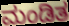
ಮಂಡಿತ